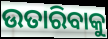
ଉତାରିବାକୁ